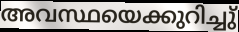
അവസ്ഥയെക്കുറിച്ചു്